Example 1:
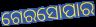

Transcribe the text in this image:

ଗେରସୋପାର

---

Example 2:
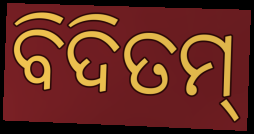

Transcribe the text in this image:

ବିଦିତମ୍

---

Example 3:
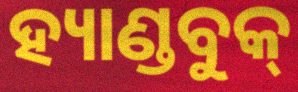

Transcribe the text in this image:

ହ୍ୟାଣ୍ଡବୁକ୍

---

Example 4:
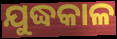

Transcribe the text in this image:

ଯୁଦ୍ଧକାଳ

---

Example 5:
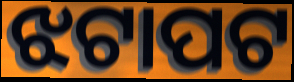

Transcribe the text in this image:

ଝଟାପଟ